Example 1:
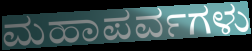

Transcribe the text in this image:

ಮಹಾಪರ್ವಗಳು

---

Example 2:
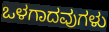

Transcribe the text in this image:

ಒಳಗಾದವುಗಳು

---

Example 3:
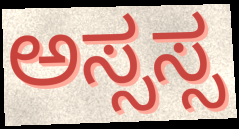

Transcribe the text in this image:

ಅಸ್ಸಸ್ಸ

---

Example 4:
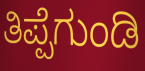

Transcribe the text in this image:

ತಿಪ್ಪೆಗುಂಡಿ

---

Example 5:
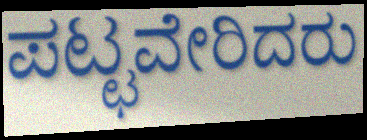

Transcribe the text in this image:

ಪಟ್ಟವೇರಿದರು